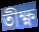
তীক্ষ্ণ